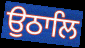
ਉਠਾਲਿ